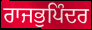
ਰਾਜਭੁਪਿੰਦਰ